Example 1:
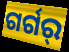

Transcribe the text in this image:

ଗର୍ଗର୍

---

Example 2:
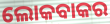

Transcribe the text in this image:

ଲୋକବାକର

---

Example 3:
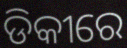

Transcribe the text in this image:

ଡିକୀରେ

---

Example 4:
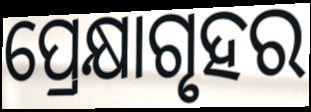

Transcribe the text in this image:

ପ୍ରେକ୍ଷାଗୃହର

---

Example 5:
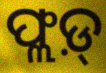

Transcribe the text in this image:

ଫ୍ଲଡ଼୍